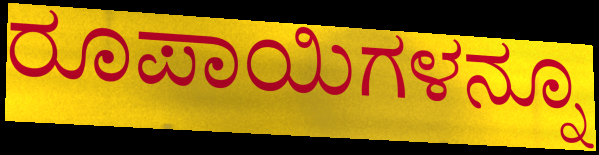
ರೂಪಾಯಿಗಳನ್ನೂ